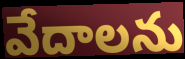
వేదాలను